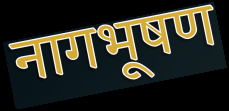
नागभूषण